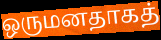
ஒருமனதாகத்